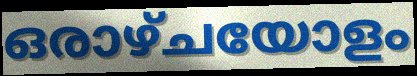
ഒരാഴ്ചയോളം